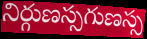
నిర్గుణస్సగుణస్స